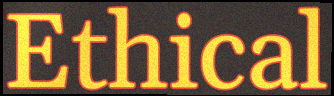
Ethical